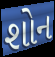
શોન